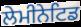
ਲੇਮੀਨੇਟਿਡ